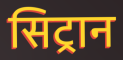
सिट्रान